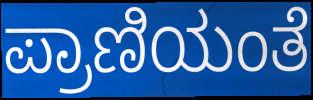
ಪ್ರಾಣಿಯಂತೆ